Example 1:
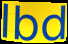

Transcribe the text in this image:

Ibd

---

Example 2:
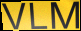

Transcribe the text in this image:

VLM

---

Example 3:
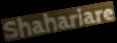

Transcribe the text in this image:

Shahariare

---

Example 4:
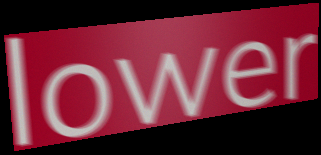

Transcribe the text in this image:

lower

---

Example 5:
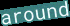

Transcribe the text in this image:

around